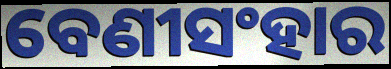
ବେଣୀସଂହାର